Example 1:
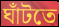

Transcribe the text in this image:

ঘাঁটতে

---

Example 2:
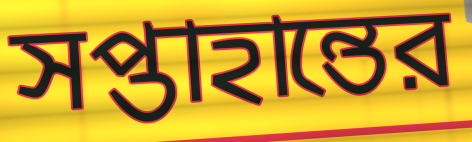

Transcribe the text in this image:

সপ্তাহান্তের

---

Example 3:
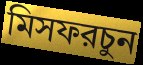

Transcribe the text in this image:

মিসফরচুন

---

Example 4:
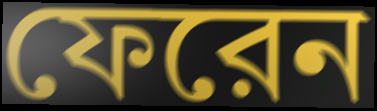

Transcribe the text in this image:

ফেরেন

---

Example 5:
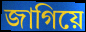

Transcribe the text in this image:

জাগিয়ে